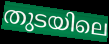
തുടയിലെ